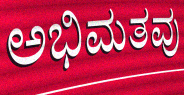
ಅಭಿಮತವು